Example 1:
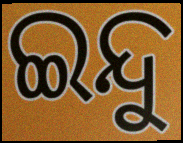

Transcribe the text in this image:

ଇନ୍ଦୁ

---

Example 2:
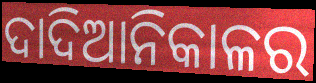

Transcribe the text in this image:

ଦାଦିଆନିକାଳର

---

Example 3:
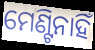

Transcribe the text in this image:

ମେଣ୍ଟିନାହିଁ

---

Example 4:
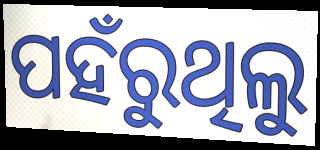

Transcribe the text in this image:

ପହଁରୁଥିଲୁ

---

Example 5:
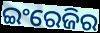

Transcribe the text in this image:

ଇଂରେଜିର